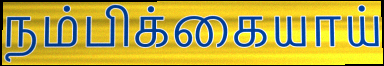
நம்பிக்கையாய்